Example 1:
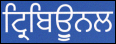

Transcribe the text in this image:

ਟ੍ਰਿਬਿਊੁਨਲ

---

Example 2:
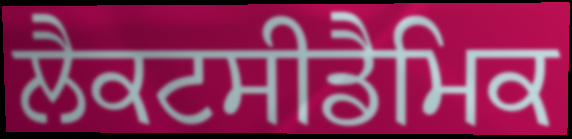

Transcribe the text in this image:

ਲੈਕਟਸੀਡੈਮਿਕ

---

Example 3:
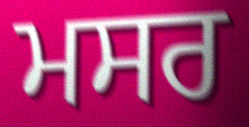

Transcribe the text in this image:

ਮਸਰ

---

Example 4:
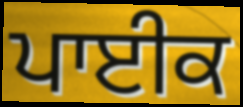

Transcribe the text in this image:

ਪਾਈਕ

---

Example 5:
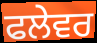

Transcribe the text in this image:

ਫਲੇਵਰ